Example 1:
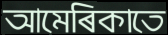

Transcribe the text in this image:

আমেৰিকাতে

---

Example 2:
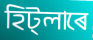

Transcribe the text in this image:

হিট্‌লাৰে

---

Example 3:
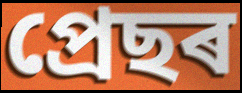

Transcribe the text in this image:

প্ৰেছৰ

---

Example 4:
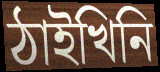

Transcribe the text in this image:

ঠাইখিনি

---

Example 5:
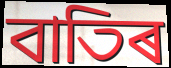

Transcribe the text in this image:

বাতিৰ